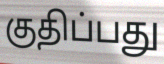
குதிப்பது